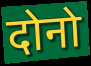
दोनो